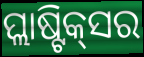
ପ୍ଲାଷ୍ଟିକ୍‌ସର